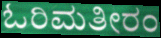
ಓರಿಮತೀರಂ